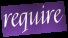
require